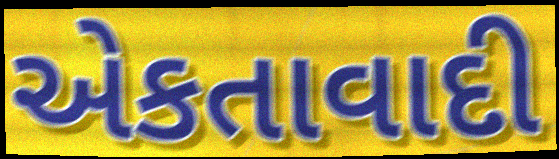
એકતાવાદી